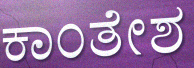
ಕಾಂತೇಶ